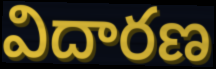
విదారణ